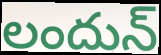
లందున్